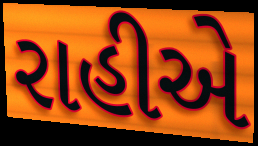
રાહીએ